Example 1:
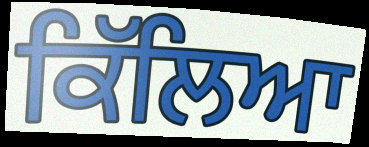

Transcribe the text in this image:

ਕਿੱਲਿਆ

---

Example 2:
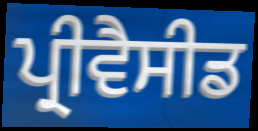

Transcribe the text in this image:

ਪ੍ਰੀਵੈਸੀਡ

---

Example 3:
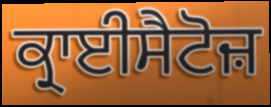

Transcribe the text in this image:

ਕ੍ਰਾਈਸੈਟੋਜ਼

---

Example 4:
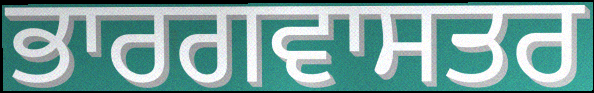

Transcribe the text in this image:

ਭਾਰਗਵਾਸਤਰ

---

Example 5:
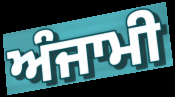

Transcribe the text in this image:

ਅੰਜਾਮੀ